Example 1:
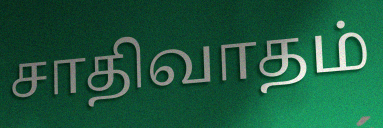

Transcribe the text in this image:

சாதிவாதம்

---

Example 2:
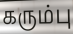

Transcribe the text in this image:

கரும்பு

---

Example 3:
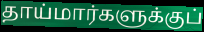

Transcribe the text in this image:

தாய்மார்களுக்குப்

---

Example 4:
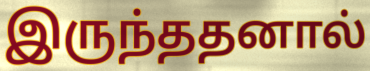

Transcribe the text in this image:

இருந்ததனால்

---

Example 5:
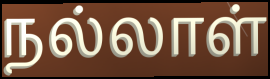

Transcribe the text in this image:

நல்லாள்